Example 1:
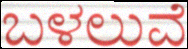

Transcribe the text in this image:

ಬಳಲುವೆ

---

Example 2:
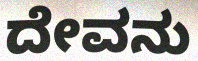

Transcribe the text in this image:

ದೇವನು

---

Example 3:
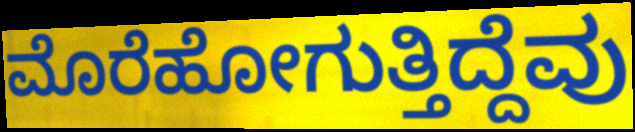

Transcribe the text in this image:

ಮೊರೆಹೋಗುತ್ತಿದ್ದೆವು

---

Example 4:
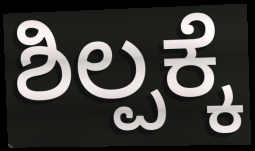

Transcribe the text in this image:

ಶಿಲ್ಪಕ್ಕೆ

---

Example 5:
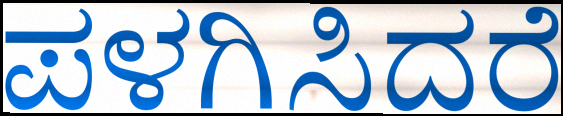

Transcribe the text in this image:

ಪಳಗಿಸಿದರೆ